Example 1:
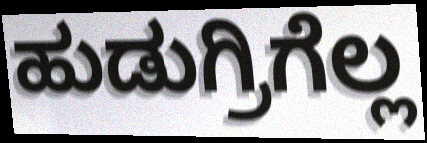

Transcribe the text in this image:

ಹುಡುಗ್ರಿಗೆಲ್ಲ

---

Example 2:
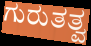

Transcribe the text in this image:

ಗುರುತತ್ವ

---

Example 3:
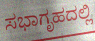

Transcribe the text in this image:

ಸಭಾಗೃಹದಲ್ಲಿ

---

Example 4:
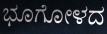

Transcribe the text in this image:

ಭೂಗೋಳದ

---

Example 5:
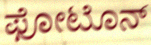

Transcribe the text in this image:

ಫೋಟೊನ್